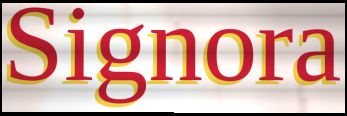
Signora